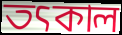
তৎকাল